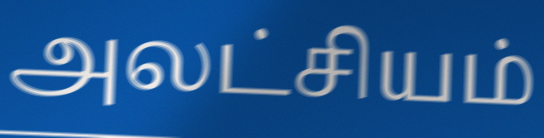
அலட்சியம்